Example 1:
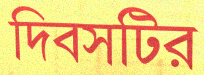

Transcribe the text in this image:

দিবসটির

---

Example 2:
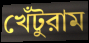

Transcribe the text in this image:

খেঁটুরাম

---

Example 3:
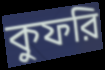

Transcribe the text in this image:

কুফরি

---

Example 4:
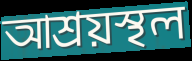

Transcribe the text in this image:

আশ্রয়স্থল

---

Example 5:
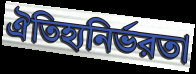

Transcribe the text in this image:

ঐতিহ্যনির্ভরতা